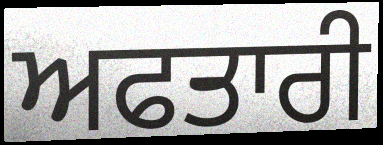
ਅਫਤਾਰੀ